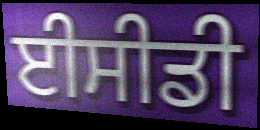
ਈਸੀਡੀ